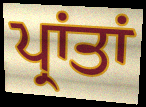
ਪ੍ਰਾਂਤਾਂ